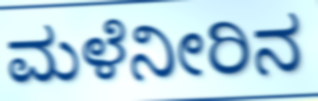
ಮಳೆನೀರಿನ